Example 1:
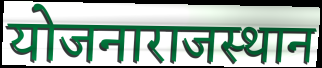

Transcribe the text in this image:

योजनाराजस्थान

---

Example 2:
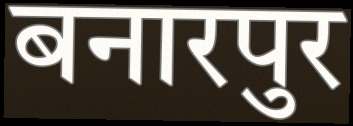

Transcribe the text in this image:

बनारपुर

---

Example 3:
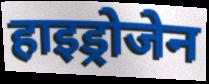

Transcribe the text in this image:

हाइड्रोजेन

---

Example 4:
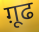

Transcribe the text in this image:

ग़ूढ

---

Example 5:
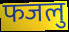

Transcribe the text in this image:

फजलु